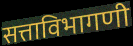
सत्ताविभागणी